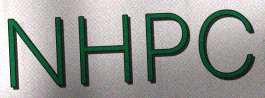
NHPC